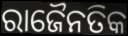
ରାଜୈନତିକ